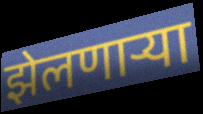
झेलणाऱ्या